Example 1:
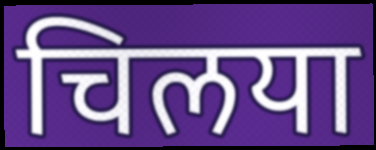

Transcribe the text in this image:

चिलया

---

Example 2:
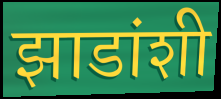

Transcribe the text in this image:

झाडांशी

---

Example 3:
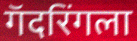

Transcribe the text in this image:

गॅदरिंगला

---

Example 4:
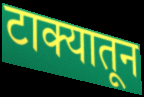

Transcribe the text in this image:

टाक्यातून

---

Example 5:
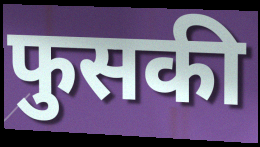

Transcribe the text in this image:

फुसकी